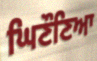
ਘਿਣੌਣਿਆ